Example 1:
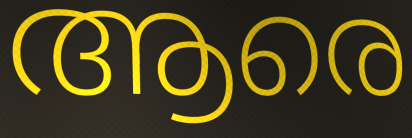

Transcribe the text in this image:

ആരെ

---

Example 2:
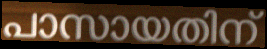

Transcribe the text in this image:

പാസായതിന്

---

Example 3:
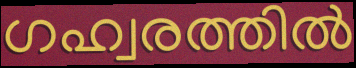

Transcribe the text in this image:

ഗഹ്വരത്തിൽ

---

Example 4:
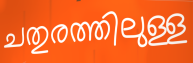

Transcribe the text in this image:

ചതുരത്തിലുള്ള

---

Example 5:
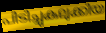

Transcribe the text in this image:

പിടിച്ചുകുലുക്കിയ